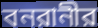
বনরানীর